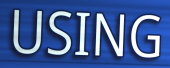
USING